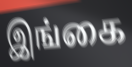
இங்கை